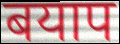
बयाप